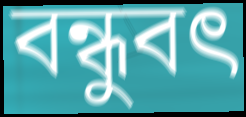
বন্ধুবৎ